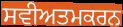
ਸਵੀਅਤਮਕਰਨ